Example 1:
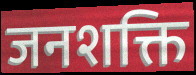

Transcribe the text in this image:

जनशक्ति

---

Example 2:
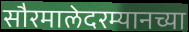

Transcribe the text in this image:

सौरमालेदरम्यानच्या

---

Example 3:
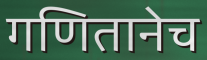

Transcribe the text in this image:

गणितानेच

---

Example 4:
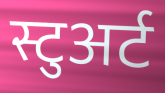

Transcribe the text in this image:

स्टुअर्ट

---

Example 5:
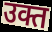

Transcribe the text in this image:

उक्त